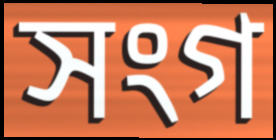
সংগ